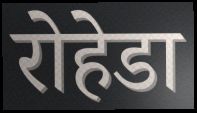
रोहेडा